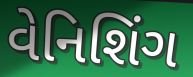
વેનિશિંગ